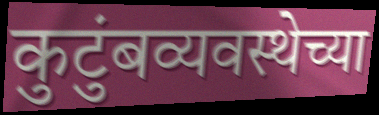
कुटुंबव्यवस्थेच्या